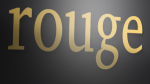
rouge